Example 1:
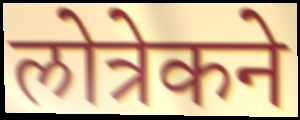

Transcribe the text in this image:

लोत्रेकने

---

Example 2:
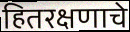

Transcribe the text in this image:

हितरक्षणाचे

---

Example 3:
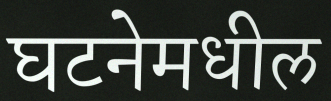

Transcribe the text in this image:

घटनेमधील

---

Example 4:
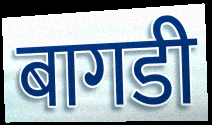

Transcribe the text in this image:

बागडी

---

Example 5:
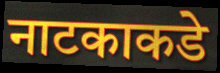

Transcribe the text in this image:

नाटकाकडे